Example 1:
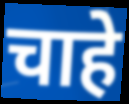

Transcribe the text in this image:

चाहे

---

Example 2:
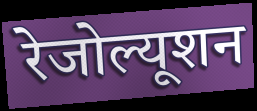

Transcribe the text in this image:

रेजोल्यूशन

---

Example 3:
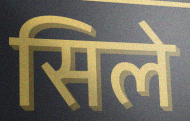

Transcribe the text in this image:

सिले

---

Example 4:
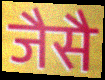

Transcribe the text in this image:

जैसै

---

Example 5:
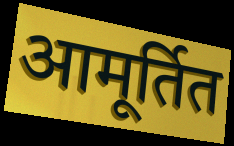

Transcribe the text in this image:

आमूर्तित